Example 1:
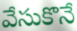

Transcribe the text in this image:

వేసుకొనే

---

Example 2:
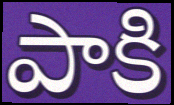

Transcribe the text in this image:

పాకి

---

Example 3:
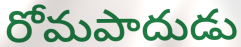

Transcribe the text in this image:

రోమపాదుడు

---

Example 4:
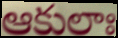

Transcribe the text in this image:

ఆకులాః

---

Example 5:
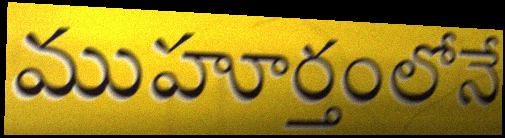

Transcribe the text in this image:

ముహూర్తంలోనే